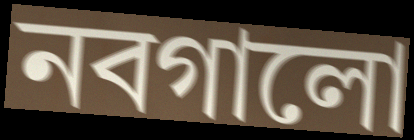
নবগালো